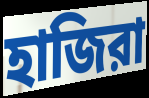
হাজিরা